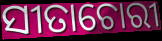
ସୀତାଚୋରୀ